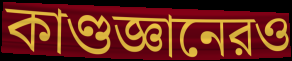
কাণ্ডজ্ঞানেরও